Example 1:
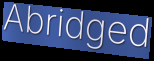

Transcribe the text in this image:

Abridged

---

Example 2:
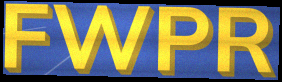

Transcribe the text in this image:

FWPR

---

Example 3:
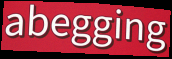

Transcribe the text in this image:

abegging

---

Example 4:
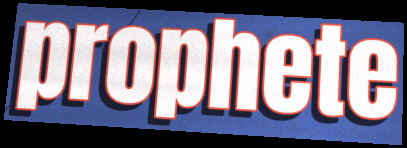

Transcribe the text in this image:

prophete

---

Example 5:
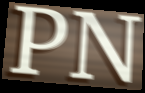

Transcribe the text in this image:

PN